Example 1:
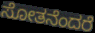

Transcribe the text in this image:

ಸೋತನೆಂದರೆ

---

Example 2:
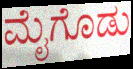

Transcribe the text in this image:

ಮೈಗೊಡು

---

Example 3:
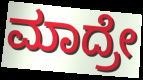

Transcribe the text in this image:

ಮಾದ್ರೇ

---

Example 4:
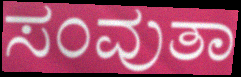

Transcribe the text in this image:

ಸಂವುತಾ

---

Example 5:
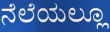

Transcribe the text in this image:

ನೆಲೆಯಲ್ಲೂ